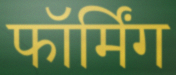
फॉर्मिंग